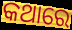
କଥାରେ